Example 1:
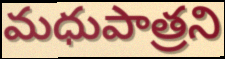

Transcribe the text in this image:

మధుపాత్రని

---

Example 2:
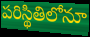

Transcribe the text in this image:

పరిస్థితిలోనూ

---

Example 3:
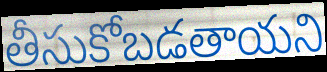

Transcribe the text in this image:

తీసుకోబడతాయని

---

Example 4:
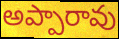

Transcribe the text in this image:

అప్పారావు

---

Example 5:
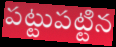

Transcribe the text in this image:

పట్టుపట్టిన